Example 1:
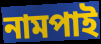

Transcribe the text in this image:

নামপাই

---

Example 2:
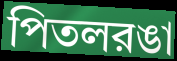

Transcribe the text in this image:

পিতলরঙা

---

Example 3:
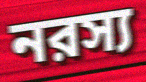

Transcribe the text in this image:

নরস্য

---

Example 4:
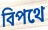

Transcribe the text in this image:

বিপথে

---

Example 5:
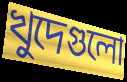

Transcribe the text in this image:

খুদেগুলো